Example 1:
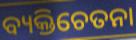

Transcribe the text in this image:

ବ୍ୟକ୍ତିଚେତନା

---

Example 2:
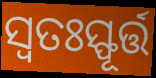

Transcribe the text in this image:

ସ୍ୱତଃସ୍ଫୂର୍ତ୍ତ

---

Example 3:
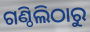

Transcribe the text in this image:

ଗଣ୍ଠିଲିଠାରୁ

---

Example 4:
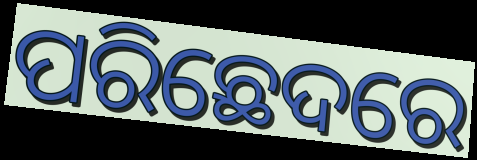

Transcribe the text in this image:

ପରିଛେଦରେ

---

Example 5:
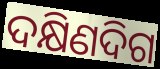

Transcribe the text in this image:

ଦକ୍ଷିଣଦିଗ